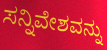
ಸನ್ನಿವೇಶವನ್ನು